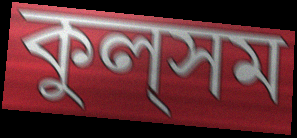
কুল্‌সম